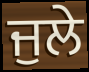
ਜੁਲੇ